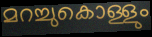
മറച്ചുകൊള്ളും